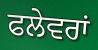
ਫਲੇਵਰਾਂ